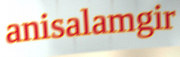
anisalamgir